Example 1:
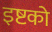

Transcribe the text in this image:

इष्टको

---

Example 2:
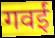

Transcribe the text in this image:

गवईं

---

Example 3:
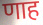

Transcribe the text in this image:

णाह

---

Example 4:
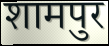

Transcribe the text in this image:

शामपुर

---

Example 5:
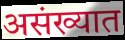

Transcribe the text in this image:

असंख्यात